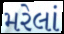
મરેલાં